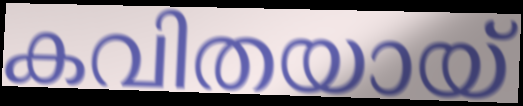
കവിതയായ്